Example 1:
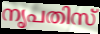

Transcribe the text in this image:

നൃപതിസ്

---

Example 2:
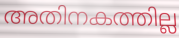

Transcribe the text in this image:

അതിനകത്തില്ല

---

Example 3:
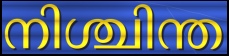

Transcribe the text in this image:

നിശ്ചിന്ത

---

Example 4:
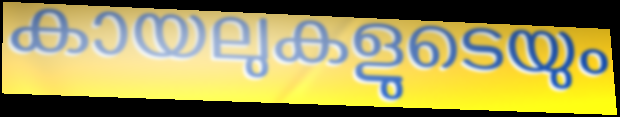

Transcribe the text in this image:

കായലുകളുടെയും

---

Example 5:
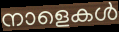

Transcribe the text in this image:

നാളെകൾ